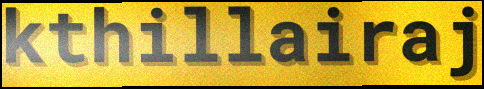
kthillairaj